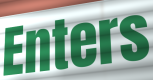
Enters